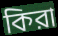
কিরা